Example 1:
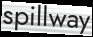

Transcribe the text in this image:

spillway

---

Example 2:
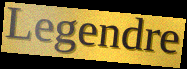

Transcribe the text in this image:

Legendre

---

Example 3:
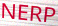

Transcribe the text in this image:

NERP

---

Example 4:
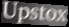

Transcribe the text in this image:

Upstox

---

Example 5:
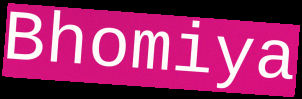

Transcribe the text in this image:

Bhomiya